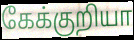
கேக்குறியா